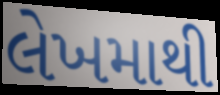
લેખમાથી